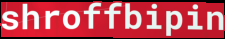
shroffbipin